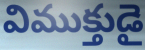
విముక్తుడై